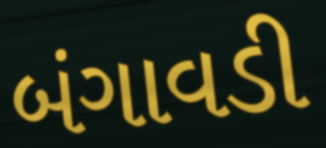
બંગાવડી